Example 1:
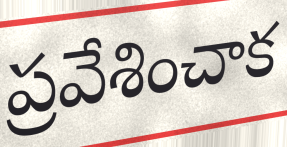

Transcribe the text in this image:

ప్రవేశించాక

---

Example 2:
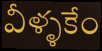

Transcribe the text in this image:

వీళ్ళకేం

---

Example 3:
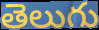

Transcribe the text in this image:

తెలుగు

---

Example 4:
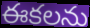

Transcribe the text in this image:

ఈకలను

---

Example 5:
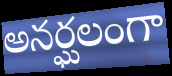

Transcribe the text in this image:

అనర్ఘలంగా